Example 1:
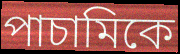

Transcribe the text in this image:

পাচামিকে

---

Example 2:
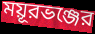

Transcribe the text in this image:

ময়ূরভঞ্জের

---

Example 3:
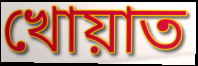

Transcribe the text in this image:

খোয়াত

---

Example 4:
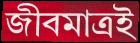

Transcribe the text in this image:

জীবমাত্রই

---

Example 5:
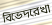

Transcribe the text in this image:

বিভেদরেখা